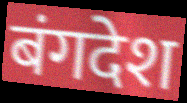
बंगदेश